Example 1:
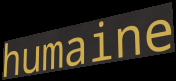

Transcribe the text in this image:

humaine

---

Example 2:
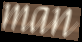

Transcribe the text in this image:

man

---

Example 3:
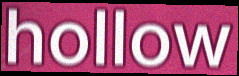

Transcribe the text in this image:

hollow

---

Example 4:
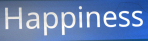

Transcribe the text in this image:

Happiness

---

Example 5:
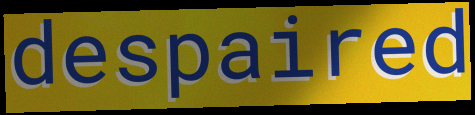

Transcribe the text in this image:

despaired